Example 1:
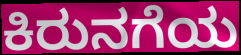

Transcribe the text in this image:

ಕಿರುನಗೆಯ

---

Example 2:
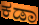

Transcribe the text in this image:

ಕಡಾ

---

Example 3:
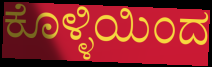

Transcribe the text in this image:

ಕೊಳ್ಳಿಯಿಂದ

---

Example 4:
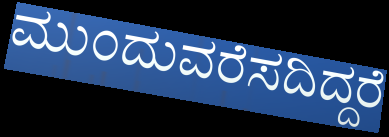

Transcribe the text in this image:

ಮುಂದುವರೆಸದಿದ್ದರೆ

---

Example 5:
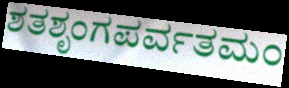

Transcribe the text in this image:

ಶತಶೃಂಗಪರ್ವತಮಂ